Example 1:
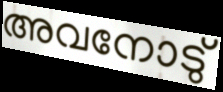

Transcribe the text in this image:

അവനോടു്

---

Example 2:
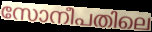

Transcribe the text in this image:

സോനീപതിലെ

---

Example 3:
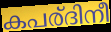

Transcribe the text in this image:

കപര്ദിനീ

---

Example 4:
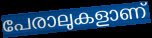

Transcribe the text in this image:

പേരാലുകളാണ്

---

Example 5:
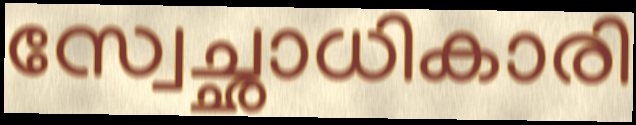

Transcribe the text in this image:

സ്വേച്ഛാധികാരി